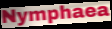
Nymphaea